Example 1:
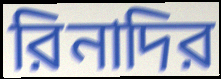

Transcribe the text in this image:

রিনাদির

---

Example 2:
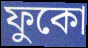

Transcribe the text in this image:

ফুকো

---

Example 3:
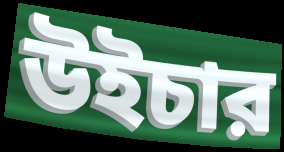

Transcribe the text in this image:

উইচার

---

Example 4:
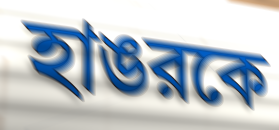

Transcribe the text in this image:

হাঙরকে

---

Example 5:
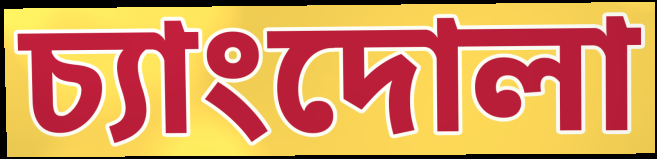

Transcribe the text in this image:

চ্যাংদোলা